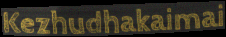
Kezhudhakaimai